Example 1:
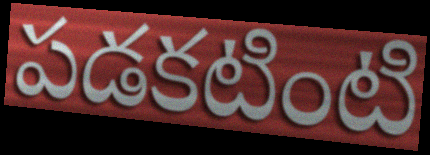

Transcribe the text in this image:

పడకటింటి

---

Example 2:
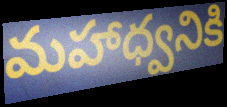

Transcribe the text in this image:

మహాధ్వనికి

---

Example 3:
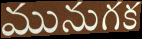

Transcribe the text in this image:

మునుగక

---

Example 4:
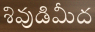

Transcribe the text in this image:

శివుడిమీద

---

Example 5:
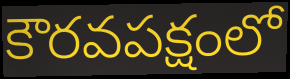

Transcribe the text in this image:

కౌరవపక్షంలో